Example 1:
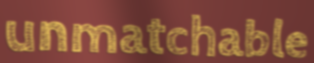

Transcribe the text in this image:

unmatchable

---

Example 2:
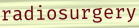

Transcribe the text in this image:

radiosurgery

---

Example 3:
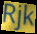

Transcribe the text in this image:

Rjk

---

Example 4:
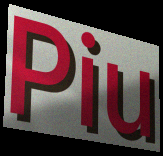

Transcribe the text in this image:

Piu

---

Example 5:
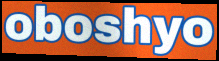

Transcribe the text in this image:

oboshyo